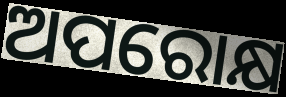
ଅପରୋକ୍ଷ